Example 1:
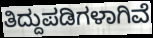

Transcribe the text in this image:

ತಿದ್ದುಪಡಿಗಳಾಗಿವೆ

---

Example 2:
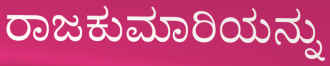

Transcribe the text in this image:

ರಾಜಕುಮಾರಿಯನ್ನು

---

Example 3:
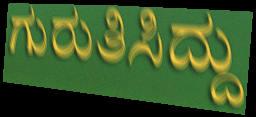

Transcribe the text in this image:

ಗುರುತಿಸಿದ್ದು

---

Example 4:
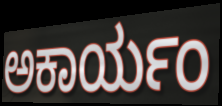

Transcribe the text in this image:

ಅಕಾರ್ಯಂ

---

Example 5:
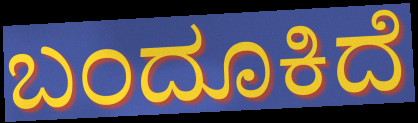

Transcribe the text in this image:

ಬಂದೂಕಿದೆ